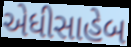
એધીસાહેબ